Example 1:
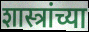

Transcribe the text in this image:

शास्त्रांच्या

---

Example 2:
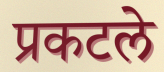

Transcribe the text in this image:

प्रकटले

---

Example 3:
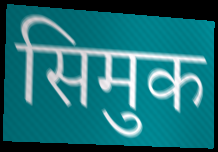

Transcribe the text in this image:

सिमुक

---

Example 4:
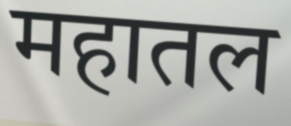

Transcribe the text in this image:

महातल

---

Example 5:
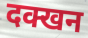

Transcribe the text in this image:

दक्खन